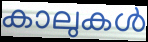
കാലുകൾ